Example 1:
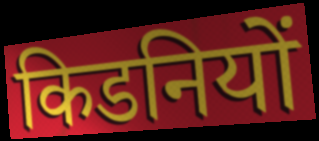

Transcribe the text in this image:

किडनियों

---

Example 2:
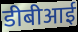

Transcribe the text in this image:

डीबीआई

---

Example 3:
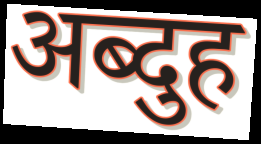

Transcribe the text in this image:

अब्दुह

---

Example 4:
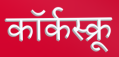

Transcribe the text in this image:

कॉर्कस्क्रू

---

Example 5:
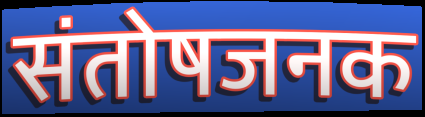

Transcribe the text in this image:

संतोषजनक